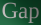
Gap